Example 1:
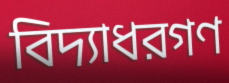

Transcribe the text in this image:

বিদ্যাধরগণ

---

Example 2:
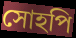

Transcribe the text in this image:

সোহপি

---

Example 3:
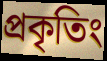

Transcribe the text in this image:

প্রকৃতিং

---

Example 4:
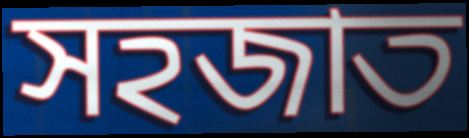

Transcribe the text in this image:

সহজাত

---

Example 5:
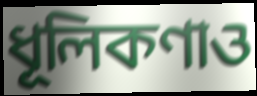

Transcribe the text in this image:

ধূলিকণাও